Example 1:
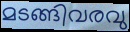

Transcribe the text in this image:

മടങ്ങിവരവു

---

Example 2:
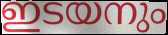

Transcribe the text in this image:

ഇടയനും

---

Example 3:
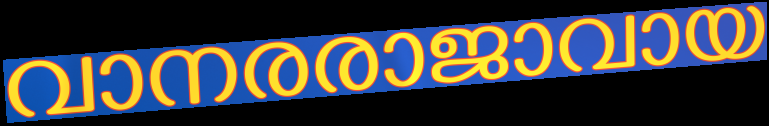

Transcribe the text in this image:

വാനരരാജാവായ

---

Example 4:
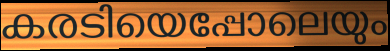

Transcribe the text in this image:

കരടിയെപ്പോലെയും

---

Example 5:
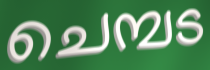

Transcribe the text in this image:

ചെമ്പട